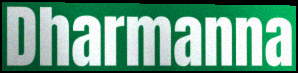
Dharmanna